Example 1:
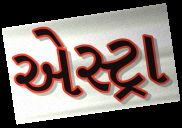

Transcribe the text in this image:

એસ્ટ્રા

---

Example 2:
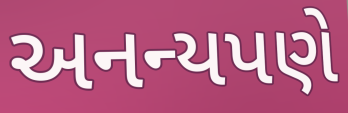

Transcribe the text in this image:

અનન્યપણે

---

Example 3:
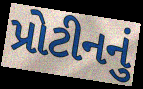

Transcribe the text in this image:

પ્રોટીનનું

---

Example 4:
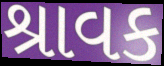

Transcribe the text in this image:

શ્રાવક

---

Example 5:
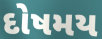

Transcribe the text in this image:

દોષમય